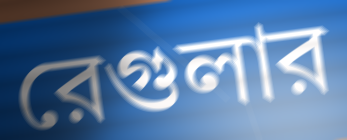
রেগুলার